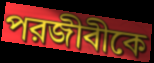
পরজীবীকে